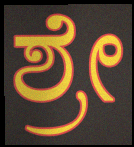
ಶ್ರೇ